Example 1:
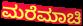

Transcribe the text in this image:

ಮರೆಮಾಚಿ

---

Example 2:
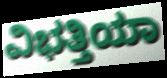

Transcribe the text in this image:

ವಿಭತ್ತಿಯಾ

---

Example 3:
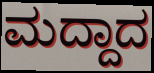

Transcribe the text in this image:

ಮದ್ದಾದ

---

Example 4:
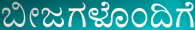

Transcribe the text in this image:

ಬೀಜಗಳೊಂದಿಗೆ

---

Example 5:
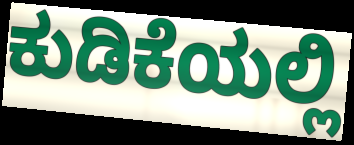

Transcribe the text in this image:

ಕುಡಿಕೆಯಲ್ಲಿ